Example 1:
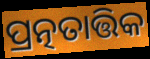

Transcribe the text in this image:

ପ୍ରତ୍ନତାତ୍ତିକ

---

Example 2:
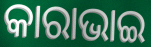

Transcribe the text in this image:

କାରାଭାଇ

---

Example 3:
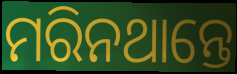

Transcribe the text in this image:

ମରିନଥାନ୍ତେ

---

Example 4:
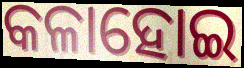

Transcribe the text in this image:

କଳାହୋଇ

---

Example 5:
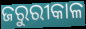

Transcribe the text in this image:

ଜରୁରୀକାଳ